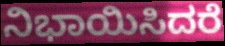
ನಿಭಾಯಿಸಿದರೆ